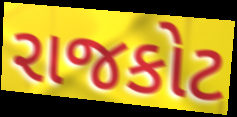
રાજકોટ